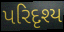
પરિદૃશ્ય